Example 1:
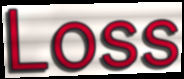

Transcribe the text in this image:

Loss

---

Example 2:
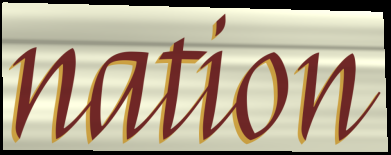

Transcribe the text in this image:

nation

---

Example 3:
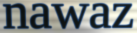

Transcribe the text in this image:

nawaz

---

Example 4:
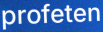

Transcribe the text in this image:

profeten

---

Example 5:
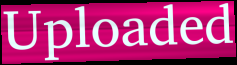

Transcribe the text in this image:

Uploaded